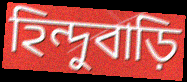
হিন্দুবাড়ি